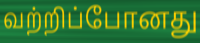
வற்றிப்போனது